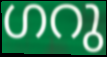
ഗറു